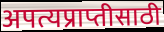
अपत्यप्राप्तीसाठी